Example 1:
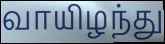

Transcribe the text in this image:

வாயிழந்து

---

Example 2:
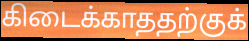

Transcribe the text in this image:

கிடைக்காததற்குக்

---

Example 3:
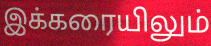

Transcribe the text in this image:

இக்கரையிலும்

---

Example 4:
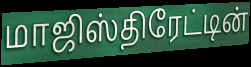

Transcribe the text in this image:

மாஜிஸ்திரேட்டின்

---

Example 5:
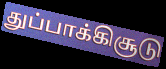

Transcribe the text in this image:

துப்பாக்கிசூடு